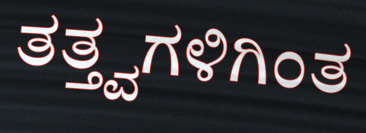
ತತ್ತ್ವಗಳಿಗಿಂತ